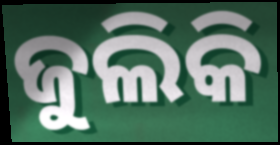
ଜୁଲିକି